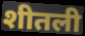
शीतली